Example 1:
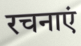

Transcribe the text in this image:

रचनाएं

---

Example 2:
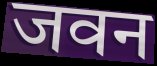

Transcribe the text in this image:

जवन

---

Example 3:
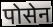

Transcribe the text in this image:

पोसेन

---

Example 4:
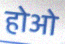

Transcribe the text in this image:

होओ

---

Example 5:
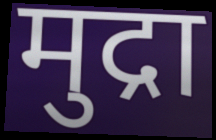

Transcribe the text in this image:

मुद्रा